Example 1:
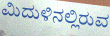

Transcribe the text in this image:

ಮಿದುಳಿನಲ್ಲಿರುವ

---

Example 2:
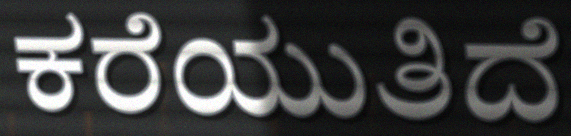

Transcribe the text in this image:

ಕರೆಯುತಿದೆ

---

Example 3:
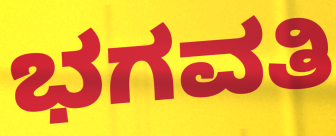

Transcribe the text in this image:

ಭಗವತಿ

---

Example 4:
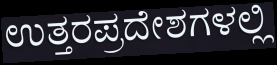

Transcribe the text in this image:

ಉತ್ತರಪ್ರದೇಶಗಳಲ್ಲಿ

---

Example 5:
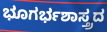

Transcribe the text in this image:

ಭೂಗರ್ಭಶಾಸ್ತ್ರದ